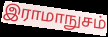
இராமாநுசம்